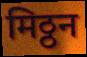
मिठ्ठन